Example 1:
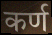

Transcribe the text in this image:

कर्ण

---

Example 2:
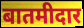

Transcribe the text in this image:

बातमीदार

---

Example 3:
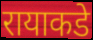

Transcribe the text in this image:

रायाकडे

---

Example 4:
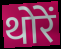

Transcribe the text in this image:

थोरें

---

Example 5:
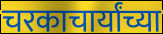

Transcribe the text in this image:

चरकाचार्यांच्या